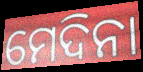
ମେଦିନା